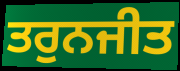
ਤਰੁਨਜੀਤ